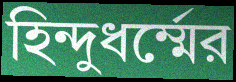
হিন্দুধর্ম্মের